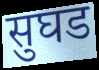
सुघड